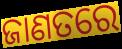
ଜାଣତରେ